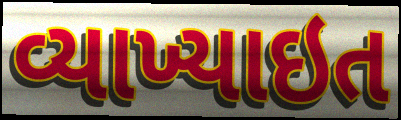
વ્યાખ્યાઇત